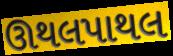
ઊથલપાથલ